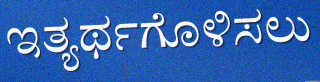
ಇತ್ಯರ್ಥಗೊಳಿಸಲು